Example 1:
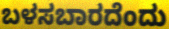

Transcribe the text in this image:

ಬಳಸಬಾರದೆಂದು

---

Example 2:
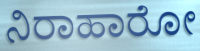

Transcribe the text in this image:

ನಿರಾಹಾರೋ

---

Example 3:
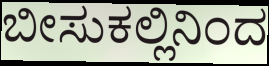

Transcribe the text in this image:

ಬೀಸುಕಲ್ಲಿನಿಂದ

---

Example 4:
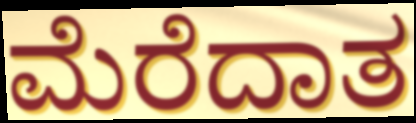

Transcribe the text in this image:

ಮೆರೆದಾತ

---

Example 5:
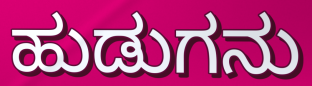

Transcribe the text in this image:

ಹುಡುಗನು